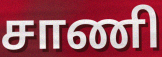
சாணி